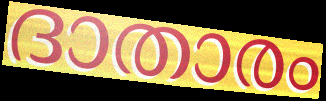
ദാതാരം